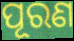
ପୂରଣ